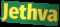
Jethva